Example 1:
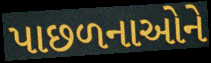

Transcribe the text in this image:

પાછળનાઓને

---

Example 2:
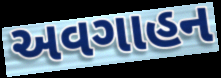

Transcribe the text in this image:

અવગાહન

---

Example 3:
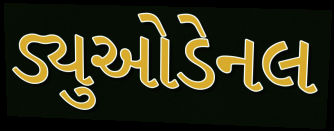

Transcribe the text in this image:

ડ્યુઓડેનલ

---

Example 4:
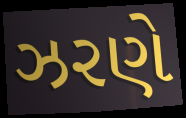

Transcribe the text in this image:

ઝરણે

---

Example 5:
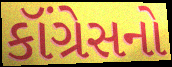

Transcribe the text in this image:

કૉંગ્રેસનો